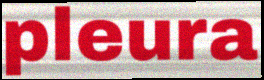
pleura